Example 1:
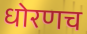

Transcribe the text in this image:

धोरणच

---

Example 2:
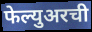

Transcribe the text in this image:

फेल्युअरची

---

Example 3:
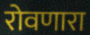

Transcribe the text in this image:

रोवणारा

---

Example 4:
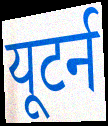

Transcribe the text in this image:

यूटर्न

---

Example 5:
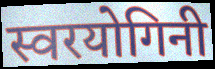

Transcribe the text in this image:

स्वरयोगिनी